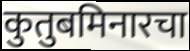
कुतुबमिनारचा